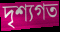
দৃশ্যগত